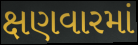
ક્ષણવારમાં